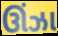
ઊંઝા